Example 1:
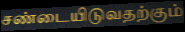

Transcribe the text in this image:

சண்டையிடுவதற்கும்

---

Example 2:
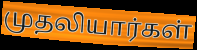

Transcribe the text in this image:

முதலியார்கள்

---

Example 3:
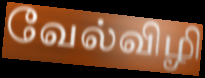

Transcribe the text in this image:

வேல்விழி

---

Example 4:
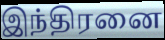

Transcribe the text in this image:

இந்திரனை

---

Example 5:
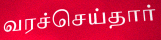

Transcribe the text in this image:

வரச்செய்தார்